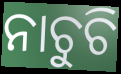
ନାଚୁଚି